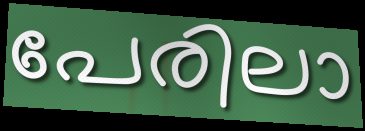
പേരിലാ